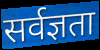
सर्वज्ञता